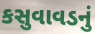
કસુવાવડનું